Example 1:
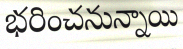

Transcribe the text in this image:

భరించనున్నాయి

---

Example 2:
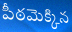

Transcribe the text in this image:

పీఠమెక్కిన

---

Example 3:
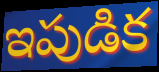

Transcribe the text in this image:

ఇపుడిక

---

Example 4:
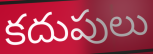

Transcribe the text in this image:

కదుపులు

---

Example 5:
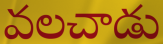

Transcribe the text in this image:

వలచాడు